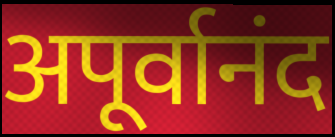
अपूर्वानंद